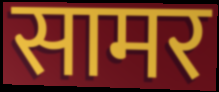
सामर